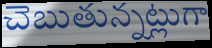
చెబుతున్నట్లుగా